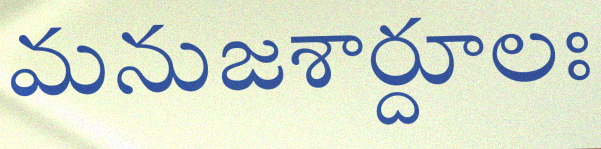
మనుజశార్దూలః